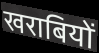
खराबियों